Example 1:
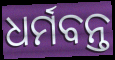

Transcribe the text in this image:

ଧର୍ମବନ୍ତ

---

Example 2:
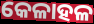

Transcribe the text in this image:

କେଳାହଳ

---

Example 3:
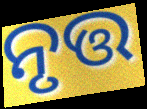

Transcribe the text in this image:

ନୃତ୍ତ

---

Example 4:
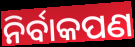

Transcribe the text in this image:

ନିର୍ବାକପଣ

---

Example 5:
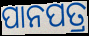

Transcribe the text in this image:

ପାନପତ୍ର